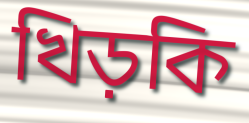
খিড়কি